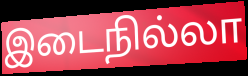
இடைநில்லா